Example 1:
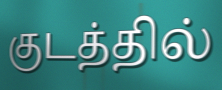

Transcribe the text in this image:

குடத்தில்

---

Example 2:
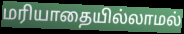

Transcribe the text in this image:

மரியாதையில்லாமல்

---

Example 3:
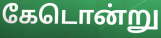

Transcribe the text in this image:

கேடொன்று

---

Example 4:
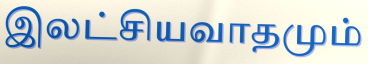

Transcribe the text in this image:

இலட்சியவாதமும்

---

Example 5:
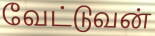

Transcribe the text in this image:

வேட்டுவன்